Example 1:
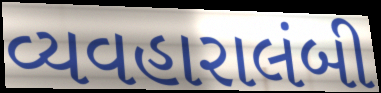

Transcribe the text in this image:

વ્યવહારાલંબી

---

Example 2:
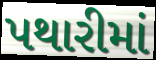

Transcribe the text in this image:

પથારીમાં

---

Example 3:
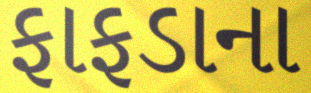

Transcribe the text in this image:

ફાફડાના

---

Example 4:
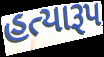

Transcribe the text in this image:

હત્યારૂપ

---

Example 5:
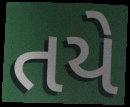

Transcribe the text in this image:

તયે